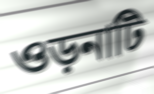
ওড়নাটি